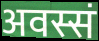
अवस्सं